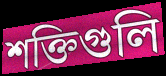
শক্তিগুলি